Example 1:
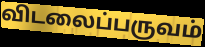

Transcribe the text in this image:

விடலைப்பருவம்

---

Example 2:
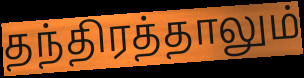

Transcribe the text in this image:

தந்திரத்தாலும்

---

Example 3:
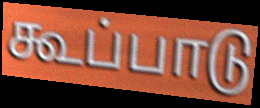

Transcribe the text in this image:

கூப்பாடு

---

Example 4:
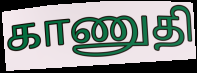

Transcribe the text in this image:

காணுதி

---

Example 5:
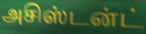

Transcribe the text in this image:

அசிஸ்டன்ட்